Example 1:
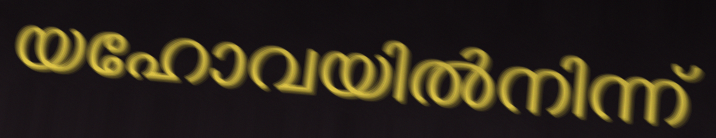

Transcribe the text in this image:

യഹോവയിൽനിന്ന്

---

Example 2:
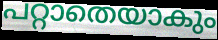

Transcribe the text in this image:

പറ്റാതെയാകും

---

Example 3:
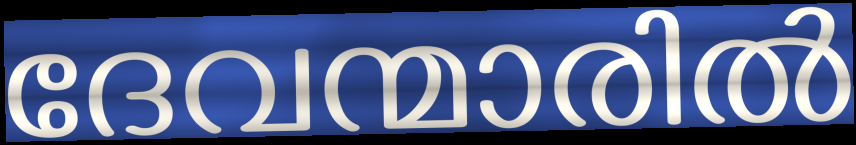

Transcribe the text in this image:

ദേവന്മാരിൽ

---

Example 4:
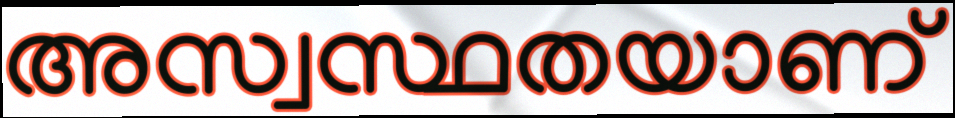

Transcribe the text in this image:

അസ്വസ്ഥതയാണ്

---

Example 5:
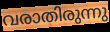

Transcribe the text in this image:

വരാതിരുന്നു